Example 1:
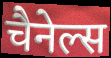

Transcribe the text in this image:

चैनेल्स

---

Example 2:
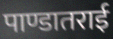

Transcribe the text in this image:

पाण्डातराई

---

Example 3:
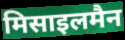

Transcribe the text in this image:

मिसाइलमैन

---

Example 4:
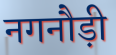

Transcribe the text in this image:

नगनौड़ी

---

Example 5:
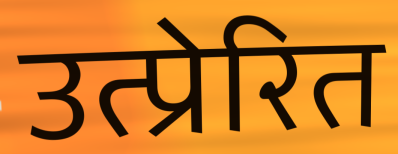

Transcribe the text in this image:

उत्‍प्रेरित